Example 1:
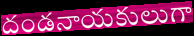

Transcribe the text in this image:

దండనాయకులుగా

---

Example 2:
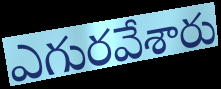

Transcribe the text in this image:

ఎగురవేశారు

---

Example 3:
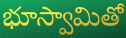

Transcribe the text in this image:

భూస్వామితో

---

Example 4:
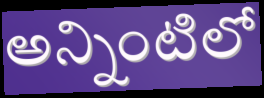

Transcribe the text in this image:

అన్నింటిలో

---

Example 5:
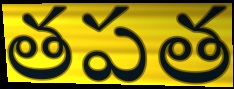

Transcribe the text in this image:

తపత